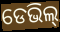
ଡେଭିଲ୍